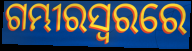
ଗମ୍ଭୀରସ୍ୱରରେ